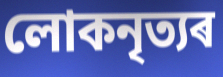
লোকনৃত্যৰ